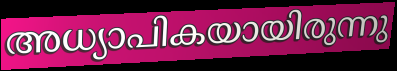
അധ്യാപികയായിരുന്നു